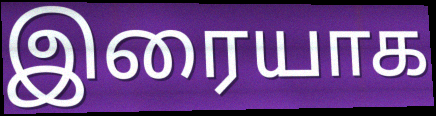
இரையாக